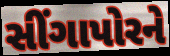
સીંગાપોરને